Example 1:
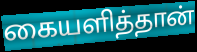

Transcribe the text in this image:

கையளித்தான்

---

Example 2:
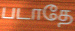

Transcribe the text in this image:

படாதே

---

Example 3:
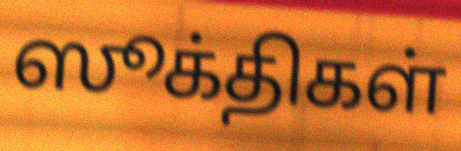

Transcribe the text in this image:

ஸூக்திகள்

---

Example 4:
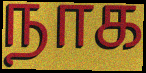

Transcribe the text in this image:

நாக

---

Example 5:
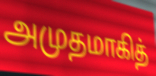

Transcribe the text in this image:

அமுதமாகித்